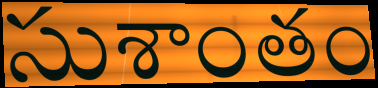
సుశాంతం